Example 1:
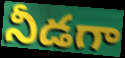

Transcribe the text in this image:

నీడగా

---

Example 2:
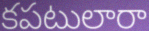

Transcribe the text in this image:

కపటులారా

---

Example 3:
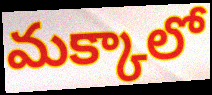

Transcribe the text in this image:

మక్కాలో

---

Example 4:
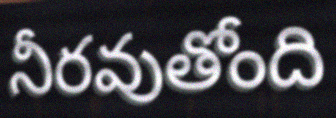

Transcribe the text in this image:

నీరవుతోంది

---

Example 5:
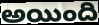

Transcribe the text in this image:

అయింది